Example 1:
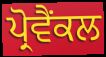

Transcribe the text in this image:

ਪ੍ਰੋਵੈਂਕਲ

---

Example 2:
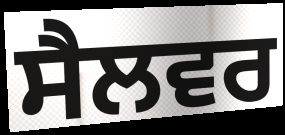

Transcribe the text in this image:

ਸੈਲਵਰ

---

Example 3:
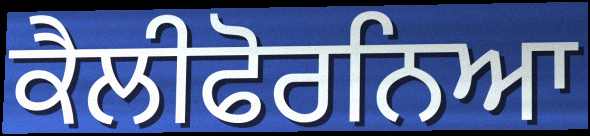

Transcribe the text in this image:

ਕੈਲੀਫੋਰਨਿਆ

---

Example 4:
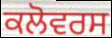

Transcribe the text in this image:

ਕਲੋਵਰਸ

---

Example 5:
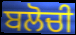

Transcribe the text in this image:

ਬਲੋਚੀ